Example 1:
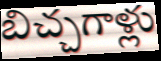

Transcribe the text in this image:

బిచ్చగాళ్లు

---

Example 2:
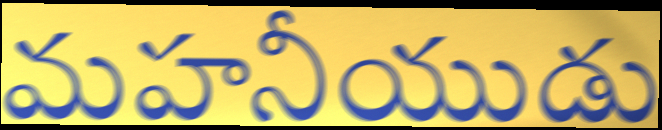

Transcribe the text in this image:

మహనీయుడు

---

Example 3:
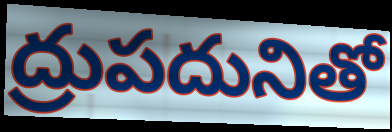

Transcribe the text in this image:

ద్రుపదునితో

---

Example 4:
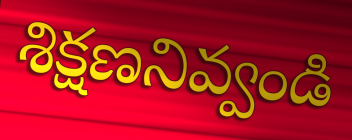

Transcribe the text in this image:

శిక్షణనివ్వండి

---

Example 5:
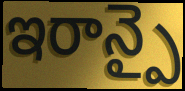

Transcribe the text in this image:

ఇరాన్పై